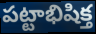
పట్టాభిషిక్త